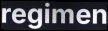
regimen